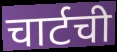
चार्टची